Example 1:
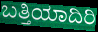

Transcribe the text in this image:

ಬತ್ತಿಯಾದಿರಿ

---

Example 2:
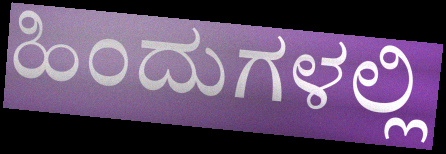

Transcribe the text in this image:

ಹಿಂದುಗಳಲ್ಲಿ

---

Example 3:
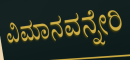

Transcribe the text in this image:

ವಿಮಾನವನ್ನೇರಿ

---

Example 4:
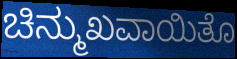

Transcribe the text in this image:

ಚಿನ್ಮುಖವಾಯಿತೊ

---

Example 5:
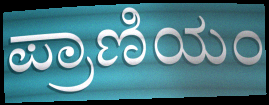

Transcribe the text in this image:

ಪ್ರಾಣಿಯಂ